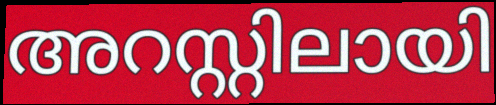
അറസ്റ്റിലായി